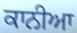
ਕਾਨੀਆ